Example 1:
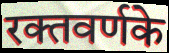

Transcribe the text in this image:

रक्तवर्णके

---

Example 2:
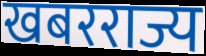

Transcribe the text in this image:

खबरराज्य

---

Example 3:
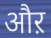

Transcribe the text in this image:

औऱ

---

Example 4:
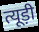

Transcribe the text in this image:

त्यूड़ी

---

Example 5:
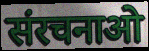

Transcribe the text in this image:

संरचनाओ